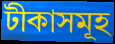
টীকাসমূহ